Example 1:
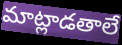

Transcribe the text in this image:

మాట్లాడతాలే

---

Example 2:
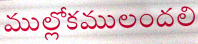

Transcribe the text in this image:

ముల్లోకములందలి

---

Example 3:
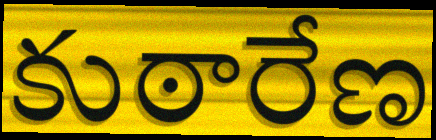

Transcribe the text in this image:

కుఠారేణ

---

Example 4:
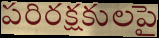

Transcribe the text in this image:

పరిరక్షకులపై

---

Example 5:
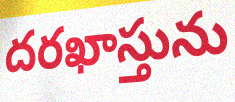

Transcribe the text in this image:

దరఖాస్తును